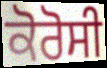
ਕੋਰੋਸੀ